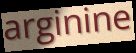
arginine